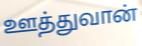
ஊத்துவான்